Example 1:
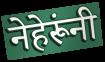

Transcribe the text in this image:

नेहेरूंनी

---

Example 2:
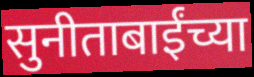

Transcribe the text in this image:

सुनीताबाईंच्या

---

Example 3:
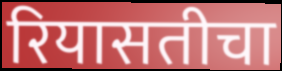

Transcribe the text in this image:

रियासतीचा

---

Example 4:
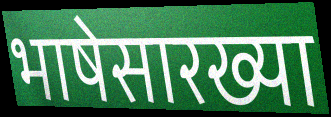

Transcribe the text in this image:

भाषेसारख्या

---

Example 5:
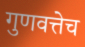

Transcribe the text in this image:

गुणवत्तेच